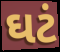
ઘટં